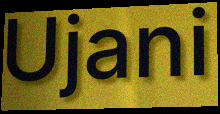
Ujani